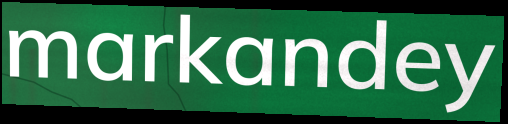
markandey